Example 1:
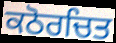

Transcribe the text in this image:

ਕਠੋਰਚਿਤ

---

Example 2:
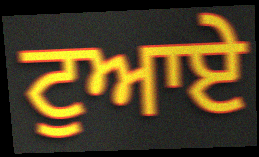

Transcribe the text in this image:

ਟੁਆਏ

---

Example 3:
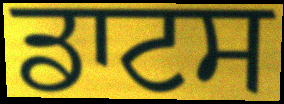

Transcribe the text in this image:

ਡਾਟਸ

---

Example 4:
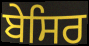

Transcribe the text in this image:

ਬੇਸਿਰ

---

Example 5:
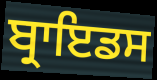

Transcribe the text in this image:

ਬ੍ਰਾਇਡਸ